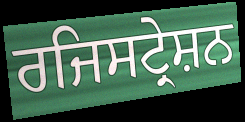
ਰਜਿਸਟ੍ਰੇਸ਼ਨ